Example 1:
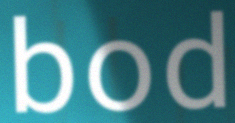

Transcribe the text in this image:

bod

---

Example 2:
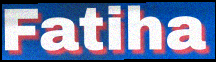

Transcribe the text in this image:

Fatiha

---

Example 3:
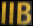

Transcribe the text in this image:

IIB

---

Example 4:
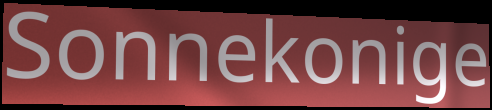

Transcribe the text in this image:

Sonnekonige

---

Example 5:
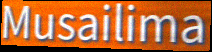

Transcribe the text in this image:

Musailima